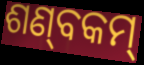
ଶଣ୍‌ବକମ୍